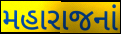
મહારાજનાં